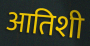
आतिशी